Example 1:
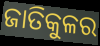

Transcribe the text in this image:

ଜାତିକୁଳର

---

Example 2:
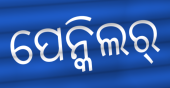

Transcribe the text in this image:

ପେନ୍କିଲର୍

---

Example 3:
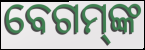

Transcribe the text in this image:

ବେଗମ୍‌ଙ୍କ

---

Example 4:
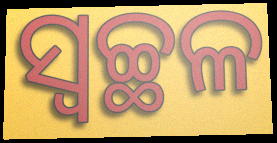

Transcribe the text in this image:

ସ୍ବଚ୍ଛଳ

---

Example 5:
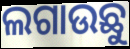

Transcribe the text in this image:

ଲଗାଉଛୁ